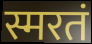
स्मरतं